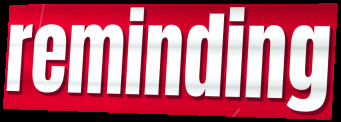
reminding